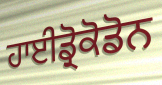
ਹਾਈਡ੍ਰੋਕੋਡੋਨ